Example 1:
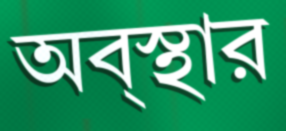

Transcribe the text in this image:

অব্স্থার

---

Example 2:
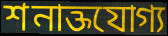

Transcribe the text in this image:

শনাক্তযোগ্য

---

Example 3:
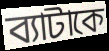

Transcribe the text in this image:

ব্যাটাকে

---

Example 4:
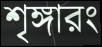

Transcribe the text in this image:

শৃঙ্গারং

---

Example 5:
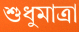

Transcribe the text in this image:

শুধুমাত্রা